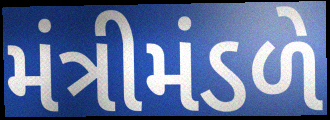
મંત્રીમંડળે